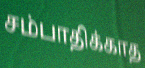
சம்பாதிக்காத